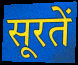
सूरतें